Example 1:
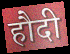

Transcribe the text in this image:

हौदी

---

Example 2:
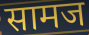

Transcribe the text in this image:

सामज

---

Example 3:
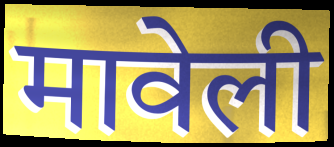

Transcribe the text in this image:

मावेली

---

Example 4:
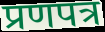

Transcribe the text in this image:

प्रणपत्र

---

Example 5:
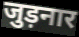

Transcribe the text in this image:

जुड़नार